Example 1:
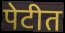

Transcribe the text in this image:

पेटीत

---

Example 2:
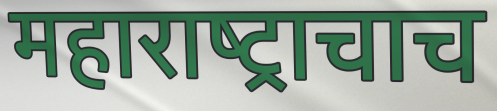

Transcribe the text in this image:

महाराष्ट्राचाच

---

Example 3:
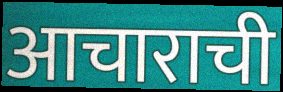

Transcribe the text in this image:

आचाराची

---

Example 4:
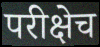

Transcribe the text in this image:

परीक्षेच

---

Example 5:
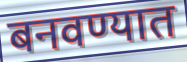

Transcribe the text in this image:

बनवण्यात